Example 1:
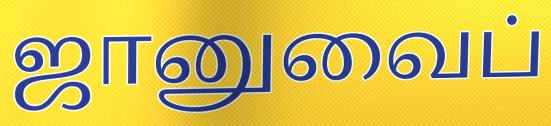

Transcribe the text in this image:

ஜானுவைப்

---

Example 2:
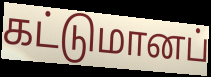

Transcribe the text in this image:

கட்டுமானப்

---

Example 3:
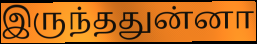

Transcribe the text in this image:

இருந்ததுன்னா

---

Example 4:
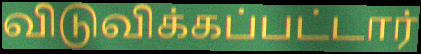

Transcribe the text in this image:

விடுவிக்கப்பட்டார்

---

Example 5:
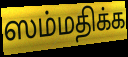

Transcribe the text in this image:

ஸம்மதிக்க